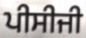
ਪੀਸੀਜੀ